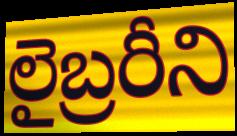
లైబ్రరీని